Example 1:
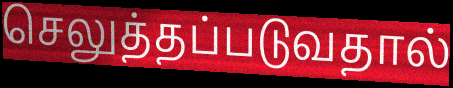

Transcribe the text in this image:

செலுத்தப்படுவதால்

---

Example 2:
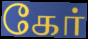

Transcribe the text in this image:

கேர்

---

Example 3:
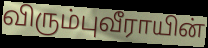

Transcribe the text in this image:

விரும்புவீராயின்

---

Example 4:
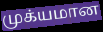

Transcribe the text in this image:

முக்யமான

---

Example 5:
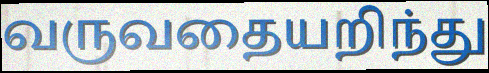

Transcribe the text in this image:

வருவதையறிந்து